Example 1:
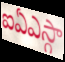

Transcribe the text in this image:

ఐఏఎస్గా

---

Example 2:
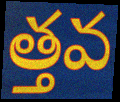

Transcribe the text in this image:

త్తవ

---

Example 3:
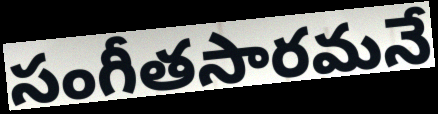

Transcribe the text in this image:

సంగీతసారమనే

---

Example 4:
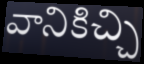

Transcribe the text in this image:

వానికిచ్చి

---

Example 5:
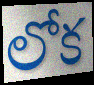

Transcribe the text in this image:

లోక